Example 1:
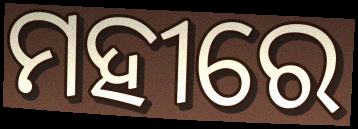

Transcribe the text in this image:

ମହୀରେ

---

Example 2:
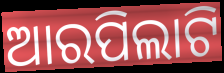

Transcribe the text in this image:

ଆରପିଲାଟି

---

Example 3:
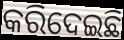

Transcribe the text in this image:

କରିଦେଇଛି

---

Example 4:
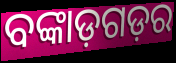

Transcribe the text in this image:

ବଙ୍କାଡ଼ଗଡ଼ର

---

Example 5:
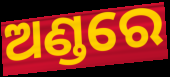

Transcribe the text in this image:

ଅଣ୍ଡରେ